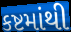
કષ્ટમાંથી